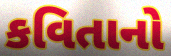
કવિતાનો